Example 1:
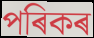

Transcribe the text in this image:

পৰিকৰ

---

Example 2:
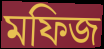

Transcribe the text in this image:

মফিজ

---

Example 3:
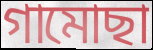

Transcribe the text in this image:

গামোছা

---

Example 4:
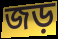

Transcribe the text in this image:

জড়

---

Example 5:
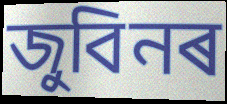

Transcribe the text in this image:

জুবিনৰ